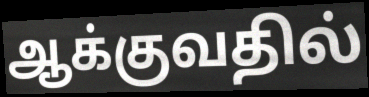
ஆக்குவதில்